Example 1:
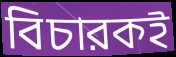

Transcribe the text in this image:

বিচারকই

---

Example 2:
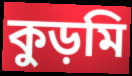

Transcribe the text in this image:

কুড়মি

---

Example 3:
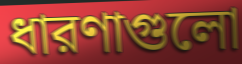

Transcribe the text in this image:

ধারণাগুলো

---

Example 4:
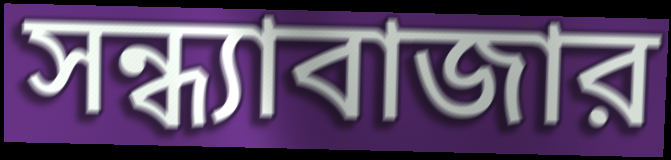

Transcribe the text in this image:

সন্ধ্যাবাজার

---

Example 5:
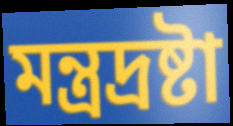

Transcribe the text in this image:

মন্ত্রদ্রষ্টা